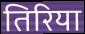
तिरिया